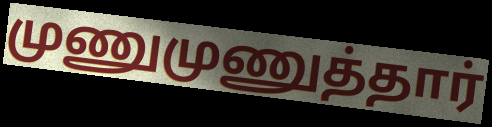
முணுமுணுத்தார்